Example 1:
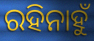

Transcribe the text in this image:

ରହିନାହୁଁ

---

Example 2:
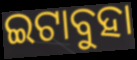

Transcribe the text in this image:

ଇଟାବୁହା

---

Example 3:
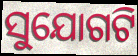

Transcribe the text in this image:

ସୁଯୋଗଟି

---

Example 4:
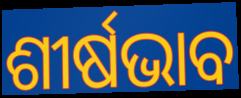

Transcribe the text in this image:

ଶୀର୍ଷଭାବ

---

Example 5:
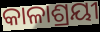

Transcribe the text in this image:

କାଳାଶ୍ରୟୀ